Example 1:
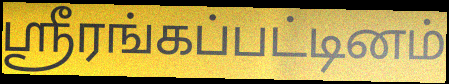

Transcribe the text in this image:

ஸ்ரீரங்கப்பட்டினம்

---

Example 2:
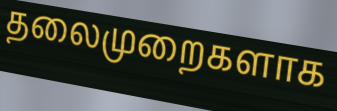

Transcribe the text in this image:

தலைமுறைகளாக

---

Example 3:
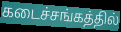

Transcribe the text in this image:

கடைச்சங்கத்தில்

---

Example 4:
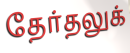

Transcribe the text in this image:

தேர்தலுக்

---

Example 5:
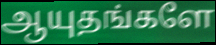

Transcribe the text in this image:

ஆயுதங்களே